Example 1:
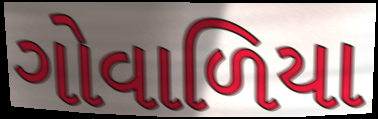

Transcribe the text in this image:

ગોવાળિયા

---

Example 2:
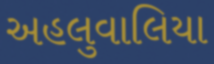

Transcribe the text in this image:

અહલુવાલિયા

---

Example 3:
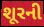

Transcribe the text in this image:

શૂરની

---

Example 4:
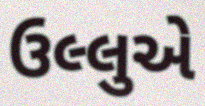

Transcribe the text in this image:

ઉલ્લુએ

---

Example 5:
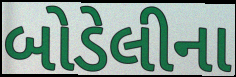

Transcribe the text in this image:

બોડેલીના